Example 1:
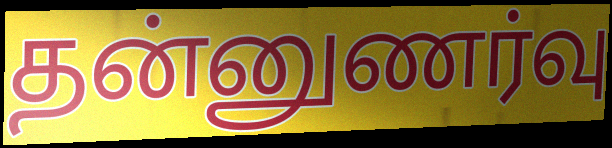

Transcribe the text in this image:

தன்னுணர்வு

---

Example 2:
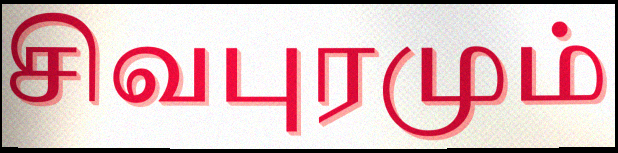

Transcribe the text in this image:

சிவபுரமும்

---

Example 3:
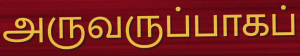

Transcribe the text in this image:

அருவருப்பாகப்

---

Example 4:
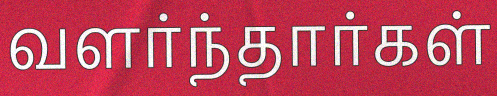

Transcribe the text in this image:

வளர்ந்தார்கள்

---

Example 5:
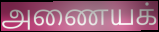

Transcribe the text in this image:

அணையக்